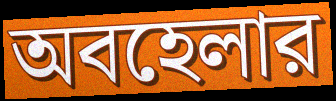
অবহেলার